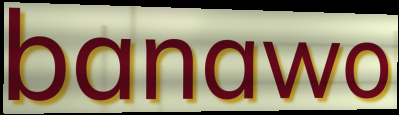
banawo